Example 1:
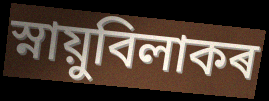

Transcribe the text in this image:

স্নায়ুবিলাকৰ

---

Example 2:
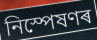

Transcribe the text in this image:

নিস্পেষণৰ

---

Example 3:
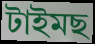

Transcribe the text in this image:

টাইমছ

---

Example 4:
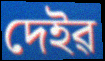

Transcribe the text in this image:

দেইৱ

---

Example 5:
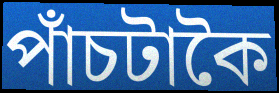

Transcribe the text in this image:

পাঁচটাকৈ